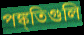
পঙ্ক্তিগুলি